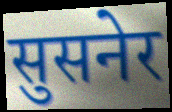
सुसनेर